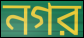
নগর